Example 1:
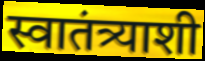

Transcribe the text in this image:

स्वातंत्र्याशी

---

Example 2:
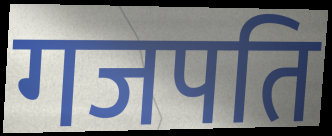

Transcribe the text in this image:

गजपति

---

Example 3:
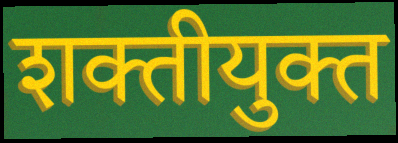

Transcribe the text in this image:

शक्तीयुक्त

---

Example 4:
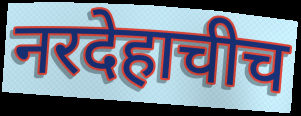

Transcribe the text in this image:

नरदेहाचीच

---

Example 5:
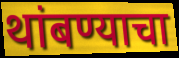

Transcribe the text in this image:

थांबण्याचा